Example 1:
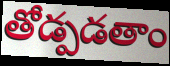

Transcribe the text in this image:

తోడ్పడతాం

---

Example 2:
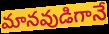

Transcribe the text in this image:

మానవుడిగానే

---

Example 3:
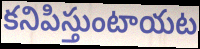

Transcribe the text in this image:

కనిపిస్తుంటాయట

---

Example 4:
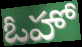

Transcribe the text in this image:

ఓహో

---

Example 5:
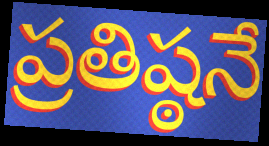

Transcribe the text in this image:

ప్రతిష్ఠనే